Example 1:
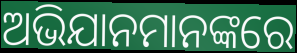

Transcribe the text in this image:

ଅଭିଯାନମାନଙ୍କରେ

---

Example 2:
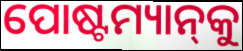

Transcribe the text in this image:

ପୋଷ୍ଟମ୍ୟାନ୍‌କୁ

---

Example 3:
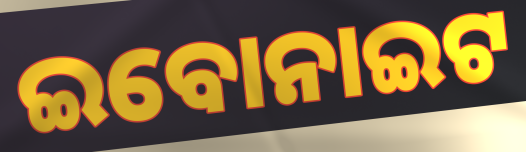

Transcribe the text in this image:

ଇବୋନାଇଟ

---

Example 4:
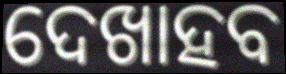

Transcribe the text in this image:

ଦେଖାହବ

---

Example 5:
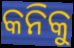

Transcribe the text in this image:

କନିକୁ